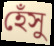
হেঁসু